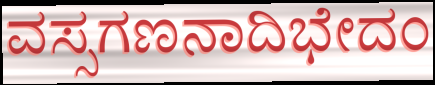
ವಸ್ಸಗಣನಾದಿಭೇದಂ